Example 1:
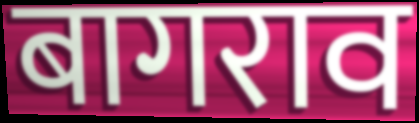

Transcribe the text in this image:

बागराव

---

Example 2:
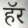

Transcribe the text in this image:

हॅर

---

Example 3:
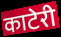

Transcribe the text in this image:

काटेरी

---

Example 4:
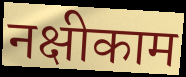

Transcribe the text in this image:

नक्षीकाम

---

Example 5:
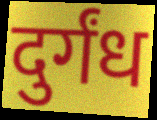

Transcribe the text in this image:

दुर्गंध